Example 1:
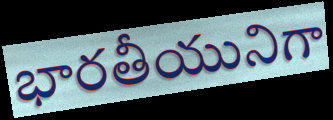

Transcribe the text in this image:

భారతీయునిగా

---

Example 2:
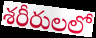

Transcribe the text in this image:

శరీరులలో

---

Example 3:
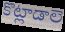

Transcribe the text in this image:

కొట్లాడాలె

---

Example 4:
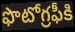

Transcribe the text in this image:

ఫొటోగ్రఫీకి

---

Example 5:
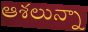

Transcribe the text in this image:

ఆశలున్నా